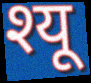
श्यू